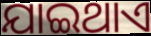
ଯାଇଥାଏ